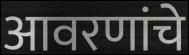
आवरणांचे